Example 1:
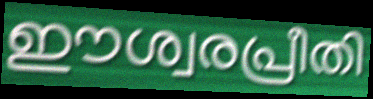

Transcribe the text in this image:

ഈശ്വരപ്രീതി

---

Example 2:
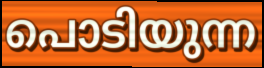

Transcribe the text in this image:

പൊടിയുന്ന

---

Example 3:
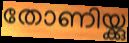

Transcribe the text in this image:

തോണിയ്ക്കു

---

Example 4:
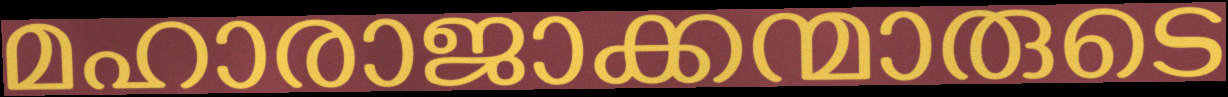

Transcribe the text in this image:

മഹാരാജാക്കന്മാരുടെ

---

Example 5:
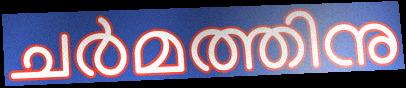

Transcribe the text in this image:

ചർമത്തിനു